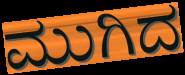
ಮುಗಿದ